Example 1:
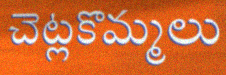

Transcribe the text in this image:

చెట్లకొమ్మలు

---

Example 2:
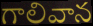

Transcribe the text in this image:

గాలివాన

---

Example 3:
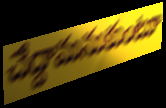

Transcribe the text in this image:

చేద్దామనుకుంటూ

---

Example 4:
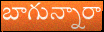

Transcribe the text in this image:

బాగున్నారా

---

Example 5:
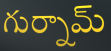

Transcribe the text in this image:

గుర్నామ్